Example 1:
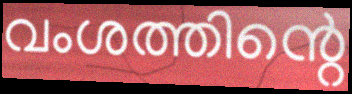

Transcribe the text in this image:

വംശത്തിന്റെ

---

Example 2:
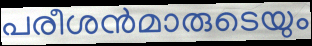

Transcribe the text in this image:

പരീശൻമാരുടെയും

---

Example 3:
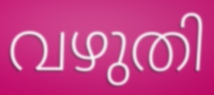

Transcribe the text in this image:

വഴുതി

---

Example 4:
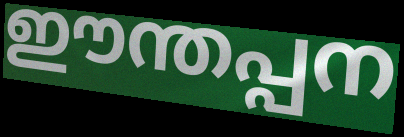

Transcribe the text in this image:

ഈന്തപ്പന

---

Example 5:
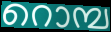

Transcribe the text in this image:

റൊമ്പ